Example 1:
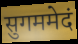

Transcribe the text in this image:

सुगममेदं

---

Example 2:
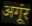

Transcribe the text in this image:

अगूंर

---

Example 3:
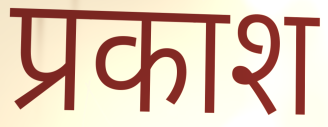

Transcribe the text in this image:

प्रकाश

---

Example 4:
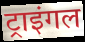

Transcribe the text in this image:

ट्राइंगल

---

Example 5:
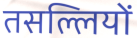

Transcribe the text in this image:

तसल्लियों